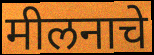
मीलनाचे